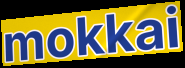
mokkai